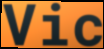
Vic